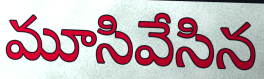
మూసివేసిన